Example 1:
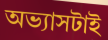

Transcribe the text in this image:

অভ্যাসটাই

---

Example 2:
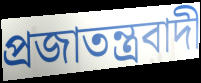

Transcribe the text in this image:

প্রজাতন্ত্রবাদী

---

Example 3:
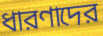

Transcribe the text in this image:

ধারণাদের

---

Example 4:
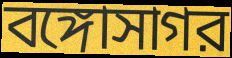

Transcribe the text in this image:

বঙ্গোসাগর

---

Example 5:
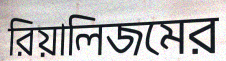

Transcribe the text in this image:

রিয়ালিজমের